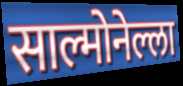
साल्मोनेल्ला